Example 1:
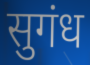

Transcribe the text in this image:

सुगंध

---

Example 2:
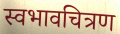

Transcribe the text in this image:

स्वभावचित्रण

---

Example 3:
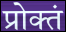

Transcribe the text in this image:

प्रोक्तं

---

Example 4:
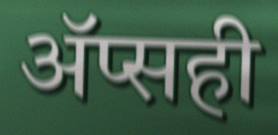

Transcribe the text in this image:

ॲप्सही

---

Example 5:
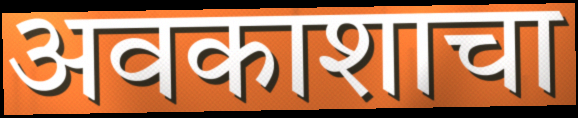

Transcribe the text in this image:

अवकाशाचा